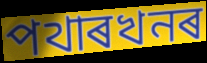
পথাৰখনৰ